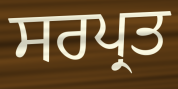
ਸਰਪ੍ਰਤ